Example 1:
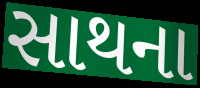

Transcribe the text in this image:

સાથના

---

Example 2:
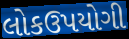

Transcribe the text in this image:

લોકઉપયોગી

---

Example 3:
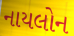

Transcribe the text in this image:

નાયલોન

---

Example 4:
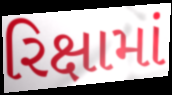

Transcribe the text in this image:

રિક્ષામાં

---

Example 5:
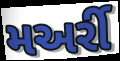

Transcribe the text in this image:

મઅર્રી